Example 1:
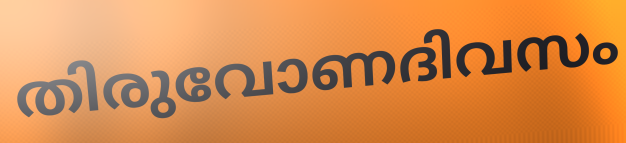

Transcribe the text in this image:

തിരുവോണദിവസം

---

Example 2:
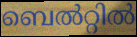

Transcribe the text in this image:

ബെൽറ്റിൽ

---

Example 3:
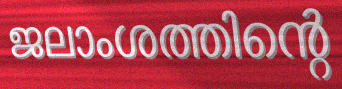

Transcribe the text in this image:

ജലാംശത്തിന്റെ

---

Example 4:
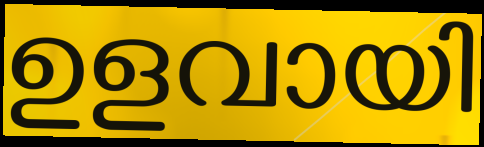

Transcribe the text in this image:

ഉളവായി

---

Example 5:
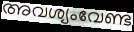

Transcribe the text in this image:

അവശ്യംവേണ്ട